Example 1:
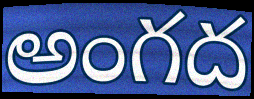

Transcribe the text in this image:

అంగద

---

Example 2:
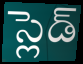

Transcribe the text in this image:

స్లెడ్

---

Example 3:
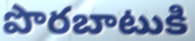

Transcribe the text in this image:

పొరబాటుకి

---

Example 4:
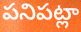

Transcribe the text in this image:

పనిపట్లా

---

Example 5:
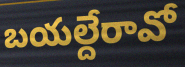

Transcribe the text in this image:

బయల్దేరావో